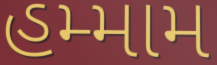
હમ્મામ